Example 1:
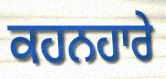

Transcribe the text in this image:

ਕਹਨਹਾਰੇ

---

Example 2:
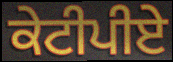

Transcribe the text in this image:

ਕੇਟੀਪੀਏ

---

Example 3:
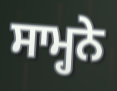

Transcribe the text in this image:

ਸਾਮ੍ਹਨੇ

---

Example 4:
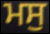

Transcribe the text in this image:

ਮਸੁ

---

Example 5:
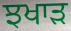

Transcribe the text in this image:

ਝਖਾੜ